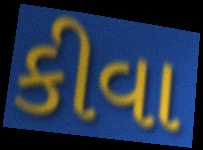
કીવા